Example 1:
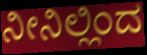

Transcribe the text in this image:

ನೀನಿಲ್ಲಿಂದ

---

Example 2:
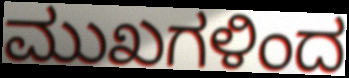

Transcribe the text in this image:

ಮುಖಗಳಿಂದ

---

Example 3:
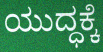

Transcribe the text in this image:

ಯುದ್ಧಕ್ಕೆ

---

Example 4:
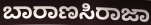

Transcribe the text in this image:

ಬಾರಾಣಸಿರಾಜಾ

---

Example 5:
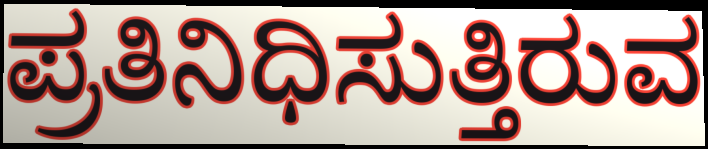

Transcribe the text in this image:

ಪ್ರತಿನಿಧಿಸುತ್ತಿರುವ